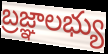
బ్రజ్ఞాలభ్యు